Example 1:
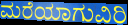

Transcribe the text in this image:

ಮರೆಯಾಗುವಿರಿ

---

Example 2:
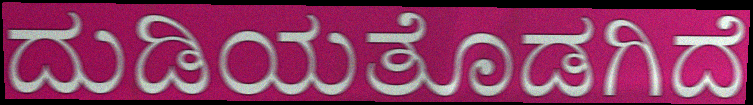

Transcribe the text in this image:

ದುಡಿಯತೊಡಗಿದೆ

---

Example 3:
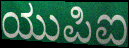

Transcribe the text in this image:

ಯುಪಿಐ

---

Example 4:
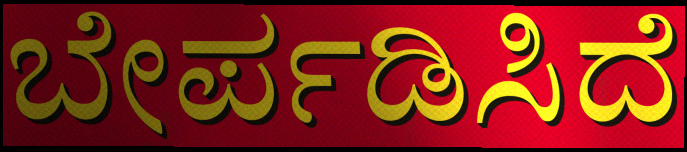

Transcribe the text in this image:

ಬೇರ್ಪಡಿಸಿದೆ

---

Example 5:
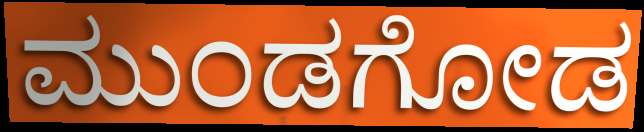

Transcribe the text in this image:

ಮುಂಡಗೋಡ